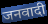
जनवादी